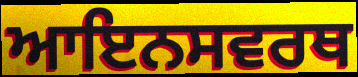
ਆਇਨਸਵਰਥ